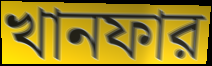
খানফার